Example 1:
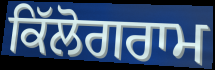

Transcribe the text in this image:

ਕਿੱਲੋਗਰਾਮ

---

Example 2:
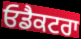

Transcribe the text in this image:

ਓਡੈਕਟਰਾ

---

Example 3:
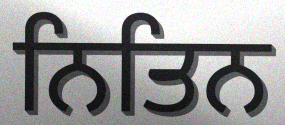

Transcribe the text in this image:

ਨਿਤਿਨ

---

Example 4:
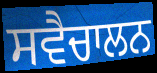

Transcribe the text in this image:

ਸਵੈਚਾਲਨ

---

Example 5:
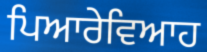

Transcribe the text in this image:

ਪਿਆਰੇਵਿਆਹ